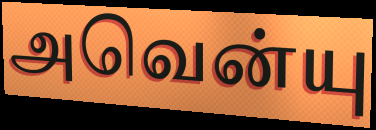
அவென்யு